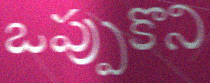
ఒప్పుకొని